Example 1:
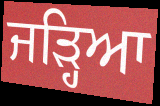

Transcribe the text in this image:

ਜੜ੍ਹਿਆ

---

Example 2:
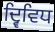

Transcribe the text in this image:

ਦ੍ਵਿਵਿਧ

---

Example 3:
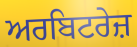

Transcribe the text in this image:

ਅਰਬਿਟਰੇਜ਼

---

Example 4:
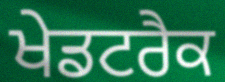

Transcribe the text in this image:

ਖੇਡਟਰੈਕ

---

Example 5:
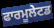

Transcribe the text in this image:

ਫਾਰਮੂਲੇਟਡ